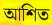
আশিত